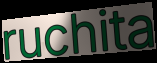
ruchita